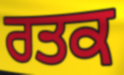
ਰਤਕ